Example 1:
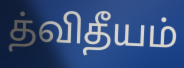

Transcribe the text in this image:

த்விதீயம்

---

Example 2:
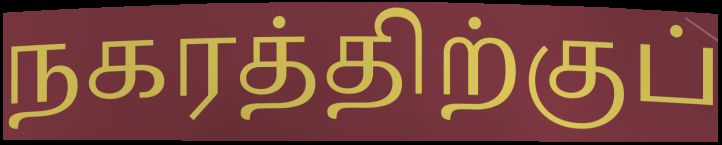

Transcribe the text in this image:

நகரத்திற்குப்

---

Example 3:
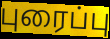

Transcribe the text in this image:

புரைப்பு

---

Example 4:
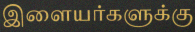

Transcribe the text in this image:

இளையர்களுக்கு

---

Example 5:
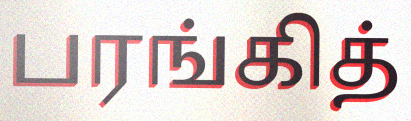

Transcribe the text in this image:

பரங்கித்